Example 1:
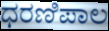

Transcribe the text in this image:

ಧರಣಿಪಾಲ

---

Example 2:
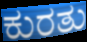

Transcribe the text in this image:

ಕುರತು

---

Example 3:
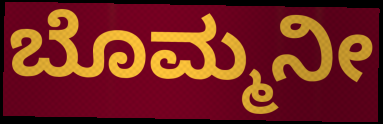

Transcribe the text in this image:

ಬೊಮ್ಮನೀ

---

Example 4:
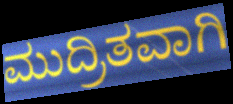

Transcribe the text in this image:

ಮುದ್ರಿತವಾಗಿ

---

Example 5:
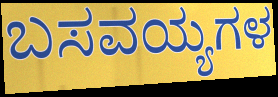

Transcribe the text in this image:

ಬಸವಯ್ಯಗಳ